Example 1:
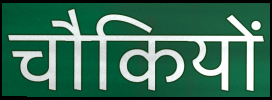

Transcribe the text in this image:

चौकियों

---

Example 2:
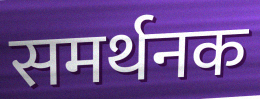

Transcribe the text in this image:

समर्थनक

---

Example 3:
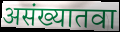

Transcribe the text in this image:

असंख्यातवा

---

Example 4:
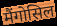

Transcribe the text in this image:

मैंगोसिल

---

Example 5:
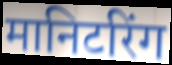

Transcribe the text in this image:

मानिटरिंग